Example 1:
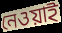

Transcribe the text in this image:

নেওয়াই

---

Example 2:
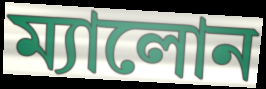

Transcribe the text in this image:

ম্যালোন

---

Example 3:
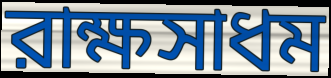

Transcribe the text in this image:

রাক্ষসাধম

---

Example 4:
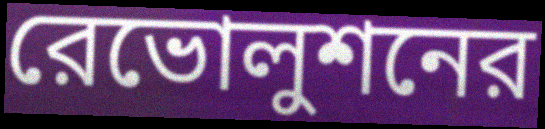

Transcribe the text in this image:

রেভোলুশনের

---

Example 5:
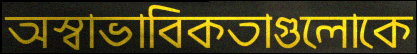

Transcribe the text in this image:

অস্বাভাবিকতাগুলোকে